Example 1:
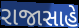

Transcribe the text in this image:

રાજાસાહે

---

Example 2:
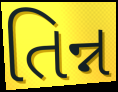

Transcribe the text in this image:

તિન્ન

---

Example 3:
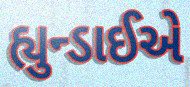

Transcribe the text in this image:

હ્યુન્ડાઈએ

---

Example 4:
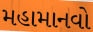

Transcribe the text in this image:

મહામાનવો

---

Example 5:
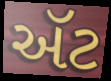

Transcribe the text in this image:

ઍટ